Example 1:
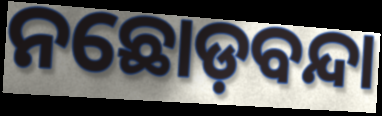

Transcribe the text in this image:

ନଛୋଡ଼ବନ୍ଦା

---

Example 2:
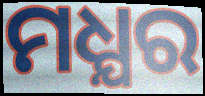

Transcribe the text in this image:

ମଧ୍ଯର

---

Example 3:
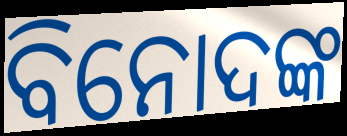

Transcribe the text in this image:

ବିନୋଦଙ୍କ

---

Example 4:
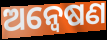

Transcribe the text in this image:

ଅନ୍ବେଷଣ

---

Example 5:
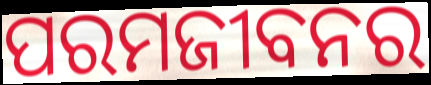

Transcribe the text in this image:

ପରମଜୀବନର